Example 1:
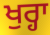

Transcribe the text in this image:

ਖੁਰ੍ਹਾ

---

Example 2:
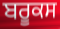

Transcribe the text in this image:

ਬਰੂਕਸ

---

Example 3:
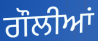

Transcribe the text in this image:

ਗੌਲੀਆਂ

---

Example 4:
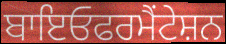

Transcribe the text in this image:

ਬਾਇਓਫਰਮੈਂਟੇਸ਼ਨ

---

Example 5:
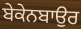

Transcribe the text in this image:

ਬੇਕੇਨਬਾਉਰ